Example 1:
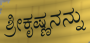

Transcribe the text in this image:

ಶ್ರೀಕೃಷ್ಣನನ್ನು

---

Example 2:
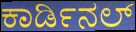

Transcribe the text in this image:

ಕಾರ್ಡಿನಲ್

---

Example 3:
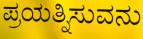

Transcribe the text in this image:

ಪ್ರಯತ್ನಿಸುವನು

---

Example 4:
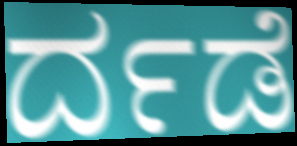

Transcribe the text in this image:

ರ್ದಡೆ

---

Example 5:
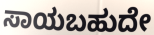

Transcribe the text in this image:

ಸಾಯಬಹುದೇ